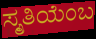
ಸ್ಮೃತಿಯೆಂಬ